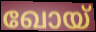
ഖോയ്